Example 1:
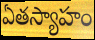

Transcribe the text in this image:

ఏతస్యాహం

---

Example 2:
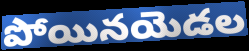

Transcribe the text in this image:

పోయినయెడల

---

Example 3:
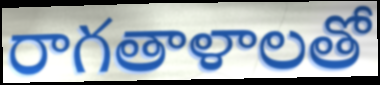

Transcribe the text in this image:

రాగతాళాలతో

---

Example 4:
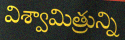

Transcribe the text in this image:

విశ్వామిత్రున్ని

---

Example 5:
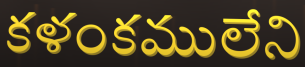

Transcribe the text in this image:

కళంకములేని